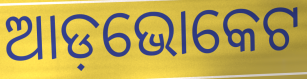
ଆଡ଼ଭୋକେଟ